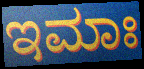
ಇಮಾಃ